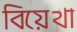
বিয়েথা